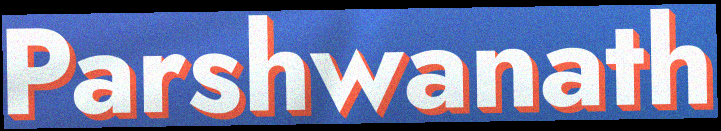
Parshwanath